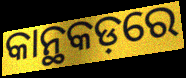
କାନ୍ଥକଡ଼ରେ